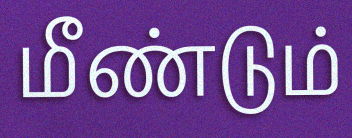
மீண்டும்